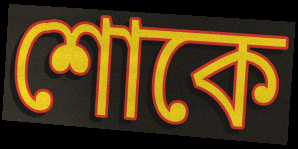
শোকে